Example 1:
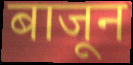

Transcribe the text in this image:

बाजून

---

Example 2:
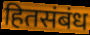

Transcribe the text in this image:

हितसंबंध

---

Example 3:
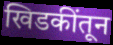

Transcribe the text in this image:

खिडकींतून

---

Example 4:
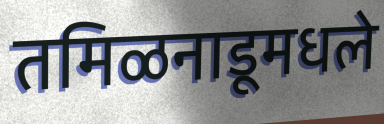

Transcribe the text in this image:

तमिळनाडूमधले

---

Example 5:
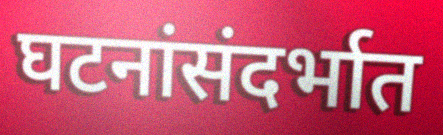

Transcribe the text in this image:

घटनांसंदर्भात